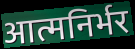
आत्मनिर्भर